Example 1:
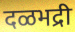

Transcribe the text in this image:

दळभद्री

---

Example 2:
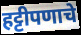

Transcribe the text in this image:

हट्टीपणाचे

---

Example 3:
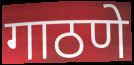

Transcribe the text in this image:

गाठणे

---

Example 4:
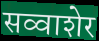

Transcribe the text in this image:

सव्वाशेर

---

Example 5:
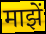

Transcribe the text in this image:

माझें